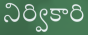
నిర్వికారి